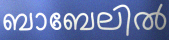
ബാബേലിൽ